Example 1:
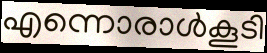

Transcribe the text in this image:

എന്നൊരാൾകൂടി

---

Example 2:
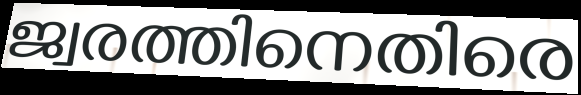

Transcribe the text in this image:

ജ്വരത്തിനെതിരെ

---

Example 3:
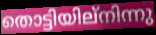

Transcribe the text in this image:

തൊട്ടിയില്നിന്നു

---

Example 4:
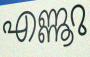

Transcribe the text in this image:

എണ്ണൂറു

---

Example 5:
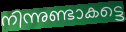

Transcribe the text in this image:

നിന്നുണ്ടാകട്ടെ